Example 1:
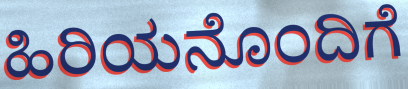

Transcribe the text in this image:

ಹಿರಿಯನೊಂದಿಗೆ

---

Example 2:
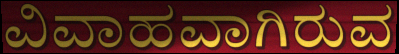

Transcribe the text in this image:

ವಿವಾಹವಾಗಿರುವ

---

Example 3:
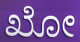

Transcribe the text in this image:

ಖೋ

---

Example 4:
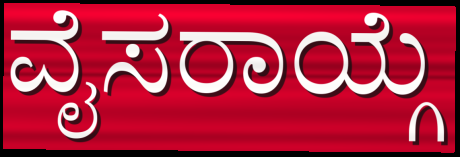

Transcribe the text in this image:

ವೈಸರಾಯ್ಗೆ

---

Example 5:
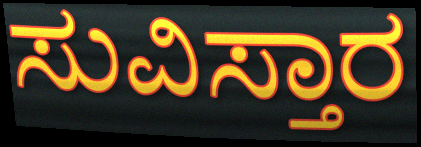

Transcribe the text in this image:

ಸುವಿಸ್ತಾರ